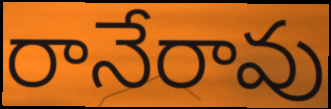
రానేరావు